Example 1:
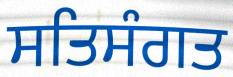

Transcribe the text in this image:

ਸਤਿਸੰਗਤ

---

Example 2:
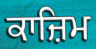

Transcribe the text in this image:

ਕਾਜ਼ਿਮ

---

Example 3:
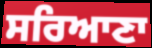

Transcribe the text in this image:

ਸਰਿਆਣਾ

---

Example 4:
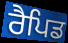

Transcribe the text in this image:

ਰੈਪਿਡ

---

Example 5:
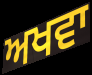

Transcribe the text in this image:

ਅਖਵਾ